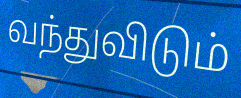
வந்துவிடும்